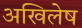
अखिलेष